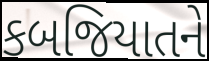
કબજિયાતને